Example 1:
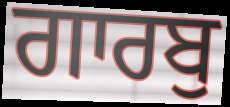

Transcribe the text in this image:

ਗਾਰਬੁ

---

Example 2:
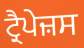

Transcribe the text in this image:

ਟ੍ਰੈਪੇਜ਼ਸ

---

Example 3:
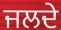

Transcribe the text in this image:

ਜਲਦੇ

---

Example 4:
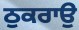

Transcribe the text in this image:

ਠੁਕਰਾਉ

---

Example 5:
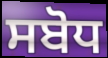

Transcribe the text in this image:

ਸਬੋਧ